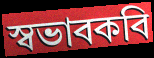
স্বভাবকবি